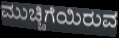
ಮುಚ್ಚಿಗೆಯಿರುವ